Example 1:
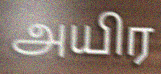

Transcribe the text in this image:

அயிர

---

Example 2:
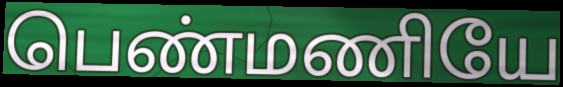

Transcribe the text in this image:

பெண்மணியே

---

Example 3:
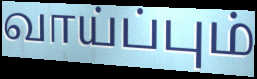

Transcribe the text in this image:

வாய்ப்பும்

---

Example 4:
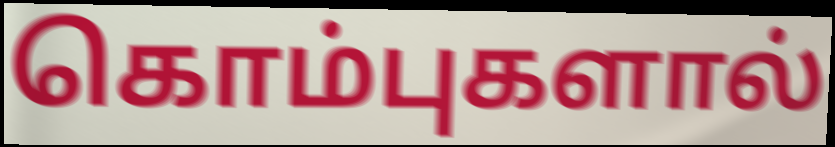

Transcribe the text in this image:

கொம்புகளால்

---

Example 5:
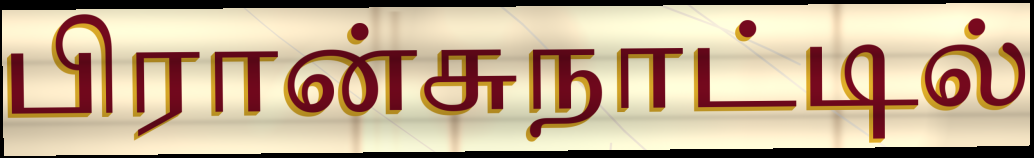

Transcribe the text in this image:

பிரான்சுநாட்டில்